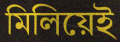
মিলিয়েই